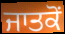
ਜਾਤਕੋਂ